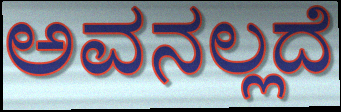
ಅವನಲ್ಲದೆ